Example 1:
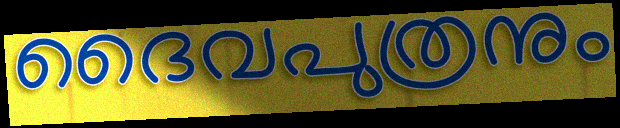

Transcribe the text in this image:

ദൈവപുത്രനും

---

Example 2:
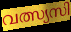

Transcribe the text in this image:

വത്സ്യസി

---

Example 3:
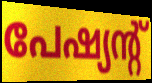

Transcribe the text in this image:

പേഷ്യന്റ്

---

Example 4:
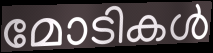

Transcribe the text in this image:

മോടികൾ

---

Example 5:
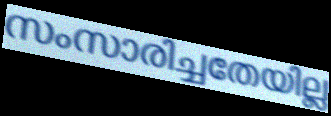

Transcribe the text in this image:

സംസാരിച്ചതേയില്ല